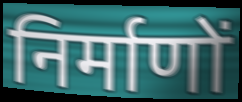
निर्माणों